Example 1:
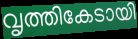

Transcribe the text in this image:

വൃത്തികേടായി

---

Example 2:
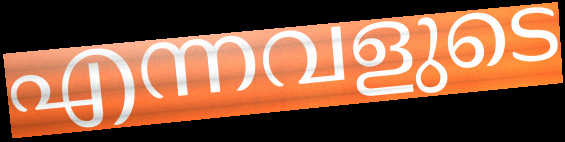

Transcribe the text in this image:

എന്നവളുടെ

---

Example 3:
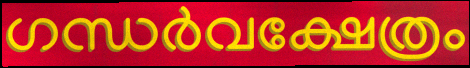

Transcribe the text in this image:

ഗന്ധർവക്ഷേത്രം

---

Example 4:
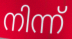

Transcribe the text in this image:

നിന്ന്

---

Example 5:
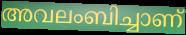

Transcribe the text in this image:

അവലംബിച്ചാണ്